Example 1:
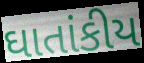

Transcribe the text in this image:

ઘાતાંકીય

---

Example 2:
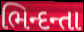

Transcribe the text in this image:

ભિન્દન્તા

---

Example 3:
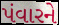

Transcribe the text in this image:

પંવારને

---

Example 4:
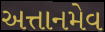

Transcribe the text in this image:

અત્તાનમેવ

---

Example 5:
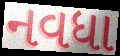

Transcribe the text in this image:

નવધા